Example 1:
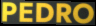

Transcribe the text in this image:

PEDRO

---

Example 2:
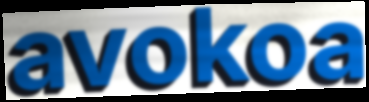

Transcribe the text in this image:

avokoa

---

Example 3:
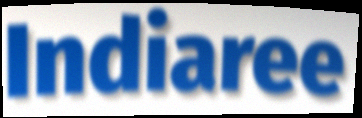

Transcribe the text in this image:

Indiaree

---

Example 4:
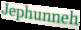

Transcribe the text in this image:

Jephunneh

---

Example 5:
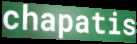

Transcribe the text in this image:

chapatis